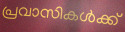
പ്രവാസികൾക്ക്